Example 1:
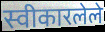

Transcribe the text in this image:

स्वीकारलेले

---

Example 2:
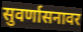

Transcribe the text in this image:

सुवर्णासनावर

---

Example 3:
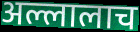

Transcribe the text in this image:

अल्लालाच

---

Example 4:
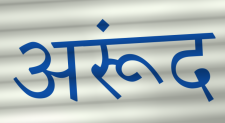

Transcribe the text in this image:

अरूंद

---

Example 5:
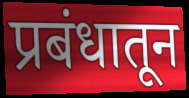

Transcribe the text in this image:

प्रबंधातून